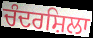
ਚੰਦਰਸ਼ਿਲਾ